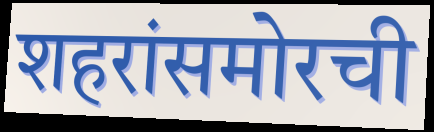
शहरांसमोरची